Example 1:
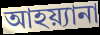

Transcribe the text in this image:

আহয়্যানা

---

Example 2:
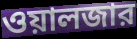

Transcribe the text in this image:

ওয়ালজার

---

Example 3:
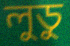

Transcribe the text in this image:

লুডু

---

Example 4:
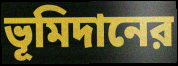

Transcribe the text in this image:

ভূমিদানের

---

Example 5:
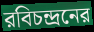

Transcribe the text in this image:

রবিচন্দ্রনের